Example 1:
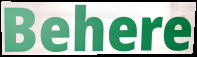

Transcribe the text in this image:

Behere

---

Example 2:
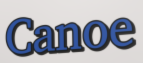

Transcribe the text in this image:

Canoe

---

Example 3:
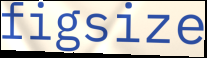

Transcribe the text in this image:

figsize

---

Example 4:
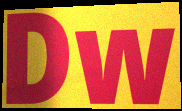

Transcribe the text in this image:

Dw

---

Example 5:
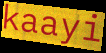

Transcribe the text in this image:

kaayi